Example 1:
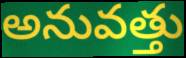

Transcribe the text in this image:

అనువత్తు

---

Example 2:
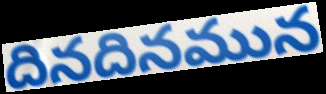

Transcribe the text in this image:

దినదినమున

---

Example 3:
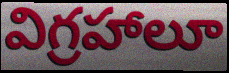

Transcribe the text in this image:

విగ్రహాలూ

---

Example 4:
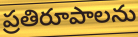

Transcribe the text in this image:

ప్రతిరూపాలను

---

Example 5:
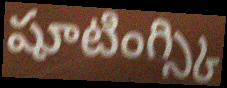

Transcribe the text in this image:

షూటింగ్స్కి